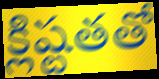
క్లిష్టతతో